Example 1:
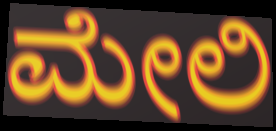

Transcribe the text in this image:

ಮೇಲಿ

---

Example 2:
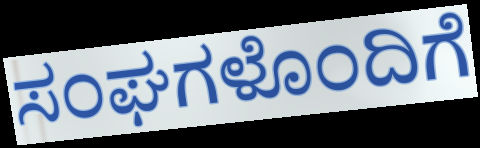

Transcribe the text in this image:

ಸಂಘಗಳೊಂದಿಗೆ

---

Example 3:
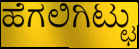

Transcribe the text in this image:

ಹೆಗಲಿಗಿಟ್ಟು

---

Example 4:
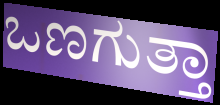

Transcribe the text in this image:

ಒಣಗುತ್ತಾ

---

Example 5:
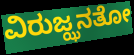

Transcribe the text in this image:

ವಿರುಜ್ಝನತೋ